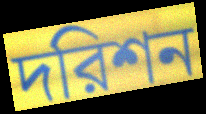
দরিশন